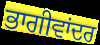
ਭਾਗੀਵਾਂਦਰ